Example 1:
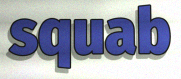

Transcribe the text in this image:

squab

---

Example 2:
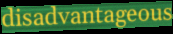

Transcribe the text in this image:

disadvantageous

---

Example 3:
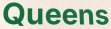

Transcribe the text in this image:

Queens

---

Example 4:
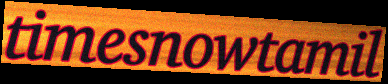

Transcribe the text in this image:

timesnowtamil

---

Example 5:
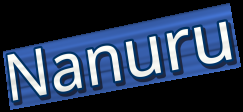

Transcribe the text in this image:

Nanuru